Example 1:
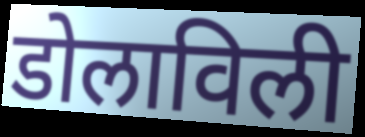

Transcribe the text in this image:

डोलाविली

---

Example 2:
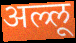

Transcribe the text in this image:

अल्लू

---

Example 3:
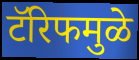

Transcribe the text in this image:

टॅरिफमुळे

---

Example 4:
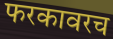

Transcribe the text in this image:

फरकावरच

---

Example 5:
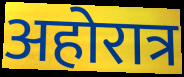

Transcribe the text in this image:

अहोरात्र